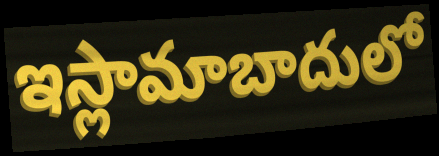
ఇస్లామాబాదులో